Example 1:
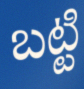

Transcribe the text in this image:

బట్టి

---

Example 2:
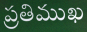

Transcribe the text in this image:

ప్రతిముఖ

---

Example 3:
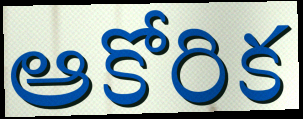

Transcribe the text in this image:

ఆకోరిక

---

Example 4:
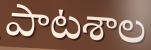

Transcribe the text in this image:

పాటశాల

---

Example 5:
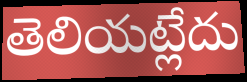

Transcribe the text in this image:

తెలియట్లేదు